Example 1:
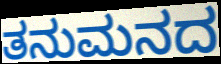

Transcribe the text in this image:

ತನುಮನದ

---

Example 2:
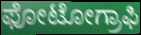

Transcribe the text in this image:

ಫೋಟೋಗ್ರಾಫಿ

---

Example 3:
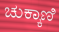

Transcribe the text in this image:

ಚುಕ್ಕಾಣಿ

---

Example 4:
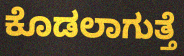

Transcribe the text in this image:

ಕೊಡಲಾಗುತ್ತೆ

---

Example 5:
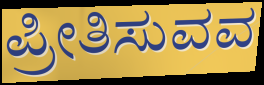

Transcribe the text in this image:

ಪ್ರೀತಿಸುವವ